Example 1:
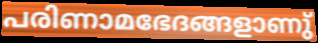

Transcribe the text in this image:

പരിണാമഭേദങ്ങളാണു്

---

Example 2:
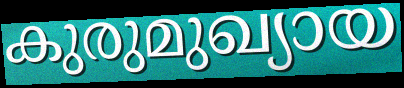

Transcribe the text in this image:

കുരുമുഖ്യായ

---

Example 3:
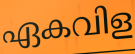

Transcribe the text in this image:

ഏകവിള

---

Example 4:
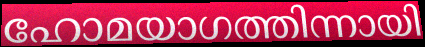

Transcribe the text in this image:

ഹോമയാഗത്തിന്നായി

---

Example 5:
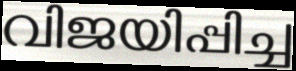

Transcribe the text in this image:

വിജയിപ്പിച്ച